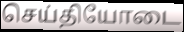
செய்தியோடை